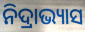
ନିଦ୍ରାଭ୍ୟାସ